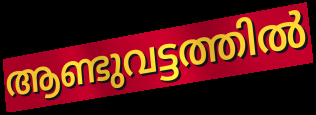
ആണ്ടുവട്ടത്തിൽ